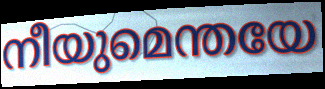
നീയുമെന്തയേ